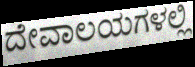
ದೇವಾಲಯಗಳಲ್ಲಿ